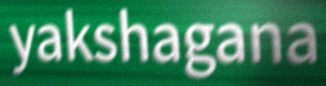
yakshagana